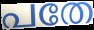
പതേ